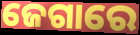
ଜେଗାରେ